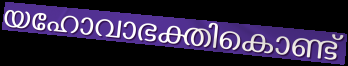
യഹോവാഭക്തികൊണ്ട്